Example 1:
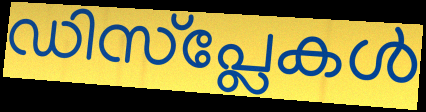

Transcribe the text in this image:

ഡിസ്പ്ലേകൾ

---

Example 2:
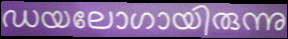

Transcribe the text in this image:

ഡയലോഗായിരുന്നു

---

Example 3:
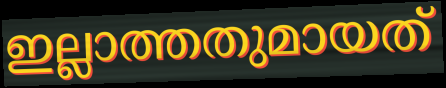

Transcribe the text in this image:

ഇല്ലാത്തതുമായത്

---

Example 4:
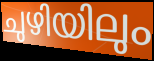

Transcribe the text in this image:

ചുഴിയിലും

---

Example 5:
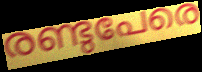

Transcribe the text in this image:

രണ്ടുപേരെ